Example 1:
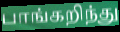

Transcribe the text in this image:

பாங்கறிந்து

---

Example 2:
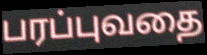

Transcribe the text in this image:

பரப்புவதை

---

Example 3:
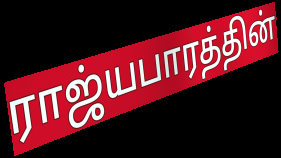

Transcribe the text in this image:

ராஜ்யபாரத்தின்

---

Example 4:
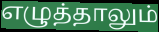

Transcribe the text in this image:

எழுத்தாலும்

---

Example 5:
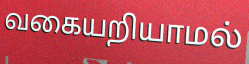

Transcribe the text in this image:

வகையறியாமல்